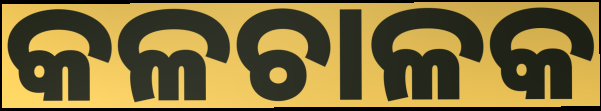
କଳଚାଳକ